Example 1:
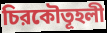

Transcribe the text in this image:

চিরকৌতূহলী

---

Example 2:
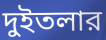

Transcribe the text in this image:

দুইতলার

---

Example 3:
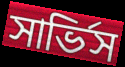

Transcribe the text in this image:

সার্ভিস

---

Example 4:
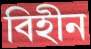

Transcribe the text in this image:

বিহীন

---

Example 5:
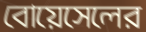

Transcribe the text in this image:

বোয়েসেলের